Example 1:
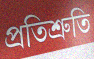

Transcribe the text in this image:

প্রতিশ্রুতি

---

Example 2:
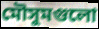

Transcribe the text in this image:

মৌসুমগুলো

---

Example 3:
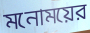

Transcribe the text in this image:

মনোময়ের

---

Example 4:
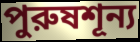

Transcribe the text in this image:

পুরুষশূন্য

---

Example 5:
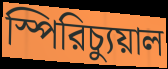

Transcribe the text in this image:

স্পিরিচ্যুয়াল